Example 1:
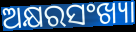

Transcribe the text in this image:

ଅକ୍ଷରସଂଖ୍ୟା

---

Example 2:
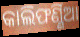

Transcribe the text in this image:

କାଲିଫର୍ଣ୍ଣିଆ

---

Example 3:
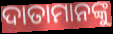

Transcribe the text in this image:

ଦାତାମାନଙ୍କୁ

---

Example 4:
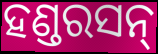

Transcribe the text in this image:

ହଣ୍ଡରସନ୍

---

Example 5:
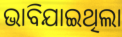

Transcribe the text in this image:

ଭାବିଯାଇଥିଲା